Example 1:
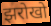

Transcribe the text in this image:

झरोखो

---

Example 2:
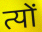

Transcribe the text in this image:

त्यों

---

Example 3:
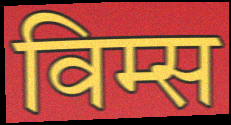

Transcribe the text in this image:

विम्स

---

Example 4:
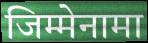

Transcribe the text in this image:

जिम्मेनामा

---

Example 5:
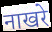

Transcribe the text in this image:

नाखरे